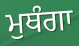
ਮੁਥੰਗਾ